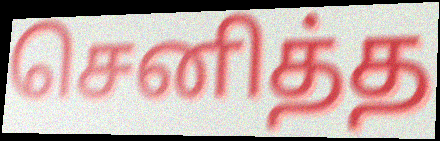
செனித்த